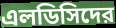
এলডিসিদের